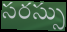
సరస్సు